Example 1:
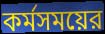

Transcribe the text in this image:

কর্মসময়ের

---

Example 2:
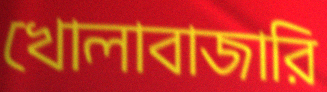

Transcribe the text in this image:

খোলাবাজারি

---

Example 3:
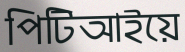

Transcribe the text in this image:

পিটিআইয়ে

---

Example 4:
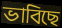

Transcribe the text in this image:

ভাবিছে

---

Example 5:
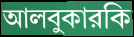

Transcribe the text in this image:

আলবুকারকি